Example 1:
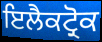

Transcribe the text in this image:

ਇਲੈਕਟ੍ਰੋਕ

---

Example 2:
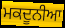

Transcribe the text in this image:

ਮਕਦੂਨੀਆ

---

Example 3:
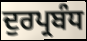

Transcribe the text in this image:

ਦੁਰਪ੍ਰਬੰਧ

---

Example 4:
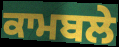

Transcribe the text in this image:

ਕਾਮਬਲੇ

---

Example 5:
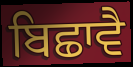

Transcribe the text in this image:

ਬਿਛਾਵੈ